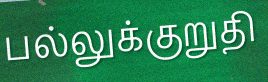
பல்லுக்குறுதி